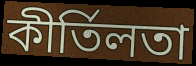
কীৰ্তিলতা